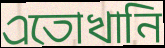
এতোখানি